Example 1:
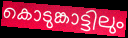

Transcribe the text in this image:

കൊടുങ്കാട്ടിലും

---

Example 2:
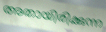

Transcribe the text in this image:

അതായിരിക്കുന്ന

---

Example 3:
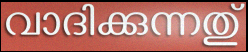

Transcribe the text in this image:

വാദിക്കുന്നതു്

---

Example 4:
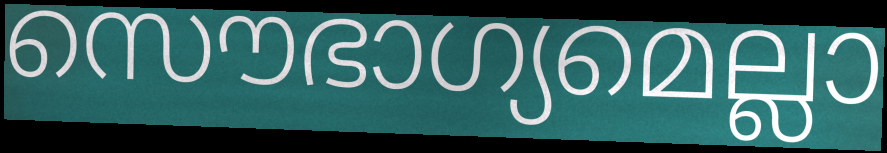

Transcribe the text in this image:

സൌഭാഗ്യമെല്ലാ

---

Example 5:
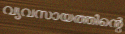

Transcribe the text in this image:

വ്യവസായത്തിന്റെ